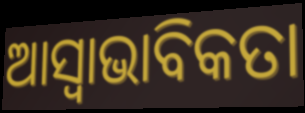
ଆସ୍ବାଭାବିକତା